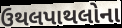
ઉથલપાથલોના